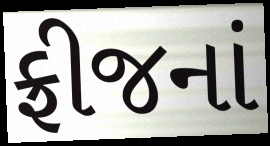
ફ્રીજનાં